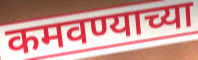
कमवण्याच्या